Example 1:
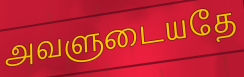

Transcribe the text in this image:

அவளுடையதே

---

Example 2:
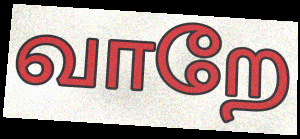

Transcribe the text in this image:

வாறே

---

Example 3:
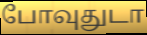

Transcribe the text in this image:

போவுதுடா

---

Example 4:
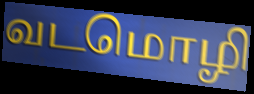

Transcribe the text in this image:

வடமொழி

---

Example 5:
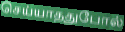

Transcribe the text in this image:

செய்யாததுபோல்